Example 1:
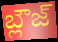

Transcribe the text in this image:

బ్లౌజ్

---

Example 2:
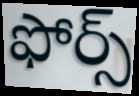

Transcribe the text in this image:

ఫోర్స్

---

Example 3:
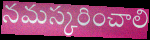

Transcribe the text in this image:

నమస్కరించాలి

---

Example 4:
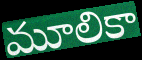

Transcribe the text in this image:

మూలికా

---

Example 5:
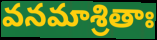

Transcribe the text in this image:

వనమాశ్రితాః